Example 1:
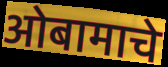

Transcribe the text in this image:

ओबामाचे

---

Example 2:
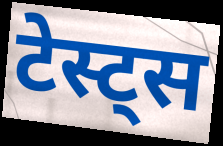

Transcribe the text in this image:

टेस्ट्स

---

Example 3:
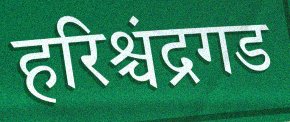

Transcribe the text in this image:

हरिश्चंद्रगड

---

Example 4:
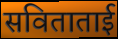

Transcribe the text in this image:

सविताताई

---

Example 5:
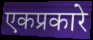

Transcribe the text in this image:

एकप्रकारे